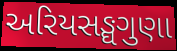
અરિયસઙ્ઘગુણા